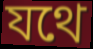
যথে